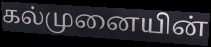
கல்முனையின்